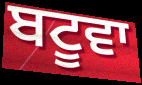
ਬਟੂਵਾ